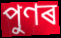
পুণৰ